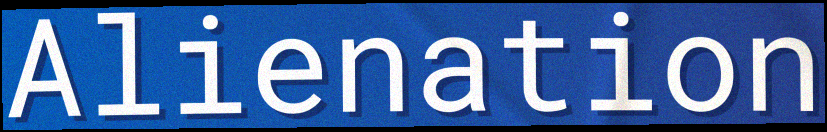
Alienation